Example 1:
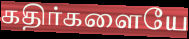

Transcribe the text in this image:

கதிர்களையே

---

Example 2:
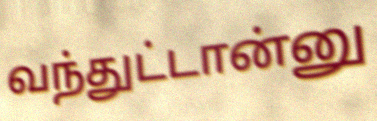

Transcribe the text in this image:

வந்துட்டான்னு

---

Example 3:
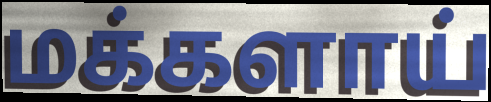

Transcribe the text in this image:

மக்களாய்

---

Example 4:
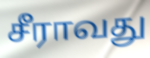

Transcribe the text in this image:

சீராவது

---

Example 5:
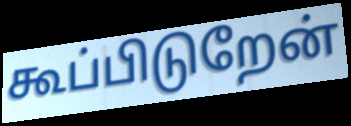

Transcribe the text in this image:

கூப்பிடுறேன்